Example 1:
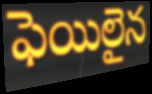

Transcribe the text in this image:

ఫెయిలైన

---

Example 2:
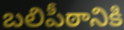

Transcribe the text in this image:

బలిపీఠానికి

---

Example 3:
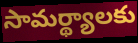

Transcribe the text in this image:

సామర్థ్యాలకు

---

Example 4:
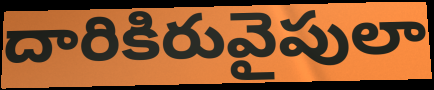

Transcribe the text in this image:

దారికిరువైపులా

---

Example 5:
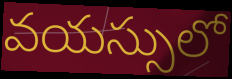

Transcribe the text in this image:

వయస్సులో